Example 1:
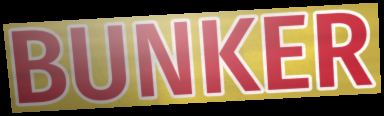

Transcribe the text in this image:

BUNKER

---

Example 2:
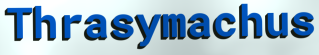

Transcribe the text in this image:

Thrasymachus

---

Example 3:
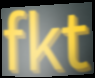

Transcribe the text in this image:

fkt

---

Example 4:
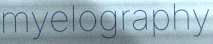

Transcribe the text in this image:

myelography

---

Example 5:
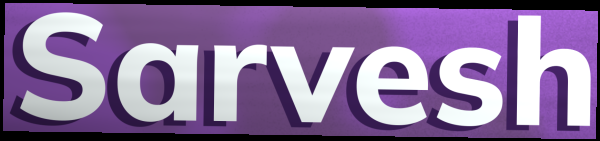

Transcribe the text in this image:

Sarvesh